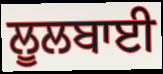
ਲੂਲਬਾਈ